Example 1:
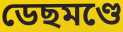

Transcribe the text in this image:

ডেছমণ্ডে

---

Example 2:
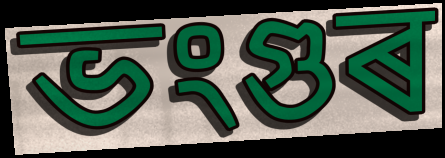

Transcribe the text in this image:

ভংগুৰ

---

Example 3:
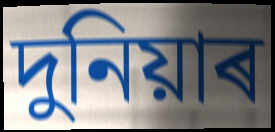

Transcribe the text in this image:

দুনিয়াৰ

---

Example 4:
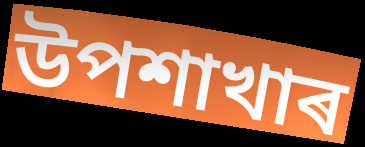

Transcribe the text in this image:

উপশাখাৰ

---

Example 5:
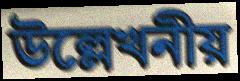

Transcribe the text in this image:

উল্লেখনীয়